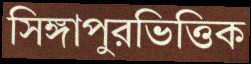
সিঙ্গাপুরভিত্তিক